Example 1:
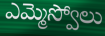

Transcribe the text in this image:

ఎమ్మెస్వోలు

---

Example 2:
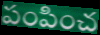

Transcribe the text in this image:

పంపించ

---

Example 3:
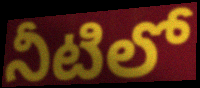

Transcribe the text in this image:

నీటిలో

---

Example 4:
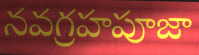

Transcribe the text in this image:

నవగ్రహపూజా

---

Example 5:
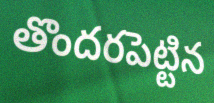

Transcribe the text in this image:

తొందరపెట్టిన